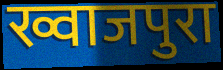
ख्वाजपुरा